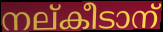
നല്കീടാന്